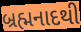
બ્રહ્મનાદથી